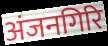
अंजनगिरि